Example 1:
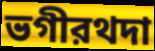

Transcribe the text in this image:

ভগীরথদা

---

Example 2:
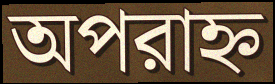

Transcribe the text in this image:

অপরাহ্ন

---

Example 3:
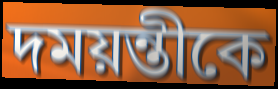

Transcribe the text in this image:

দময়ন্তীকে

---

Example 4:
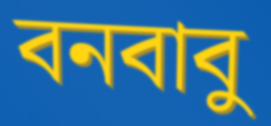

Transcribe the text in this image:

বনবাবু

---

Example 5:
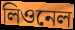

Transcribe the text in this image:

লিওনেল